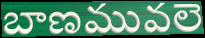
బాణమువలె